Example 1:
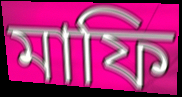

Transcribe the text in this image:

মাফি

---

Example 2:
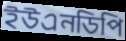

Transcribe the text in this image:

ইউএনডিপি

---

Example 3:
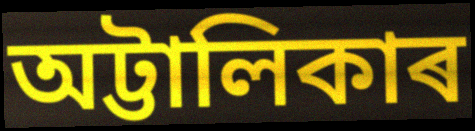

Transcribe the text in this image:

অট্টালিকাৰ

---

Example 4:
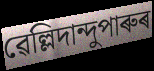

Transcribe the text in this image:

ৱেল্লিদান্দুপাৰুৰ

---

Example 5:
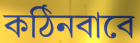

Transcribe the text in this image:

কঠিনবাবে